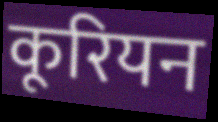
कूरियन